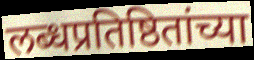
लब्धप्रतिष्ठितांच्या